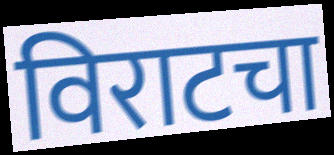
विराटचा